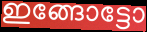
ഇങ്ങോട്ടോ